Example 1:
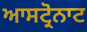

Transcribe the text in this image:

ਆਸਟ੍ਰੋਨਾਟ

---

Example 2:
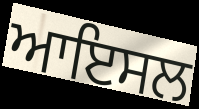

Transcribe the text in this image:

ਆਇਸਲ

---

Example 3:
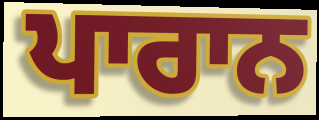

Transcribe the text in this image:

ਪਾਰਾਨ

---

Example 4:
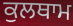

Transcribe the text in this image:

ਕੁਲਥਾਮ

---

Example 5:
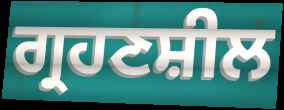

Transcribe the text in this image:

ਗ੍ਰਹਣਸ਼ੀਲ